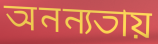
অনন্যতায়